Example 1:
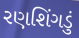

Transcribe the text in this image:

રણશિંગડું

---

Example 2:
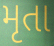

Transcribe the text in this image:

મૃતા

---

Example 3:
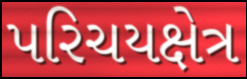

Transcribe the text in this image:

પરિચયક્ષેત્ર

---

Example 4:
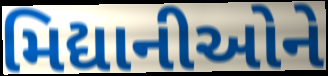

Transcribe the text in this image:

મિદ્યાનીઓને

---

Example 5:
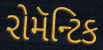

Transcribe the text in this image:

રોમૅન્ટિક